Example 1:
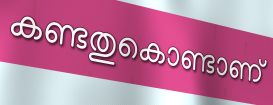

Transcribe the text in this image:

കണ്ടതുകൊണ്ടാണ്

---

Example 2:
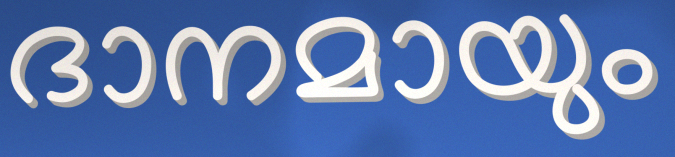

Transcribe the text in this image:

ദാനമായും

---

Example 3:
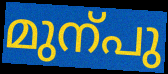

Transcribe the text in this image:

മുന്പു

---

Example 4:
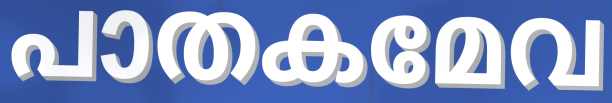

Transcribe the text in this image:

പാതകമേവ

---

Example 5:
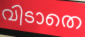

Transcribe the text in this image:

വിടാതെ